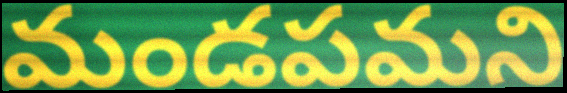
మండపమని